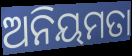
ଅନିୟମତା